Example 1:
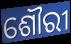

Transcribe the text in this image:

ଶୌରୀ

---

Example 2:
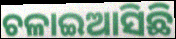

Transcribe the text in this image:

ଚଳାଇଆସିଛି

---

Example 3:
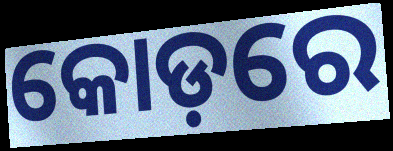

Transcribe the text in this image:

କୋଡ଼ରେ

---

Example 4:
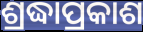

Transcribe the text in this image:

ଶ୍ରଦ୍ଧାପ୍ରକାଶ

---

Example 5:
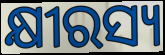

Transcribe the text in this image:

କ୍ଷୀରସ୍ୟ